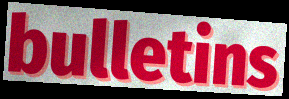
bulletins